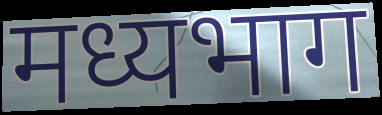
मध्यभाग